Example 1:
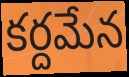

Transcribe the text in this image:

కర్దమేన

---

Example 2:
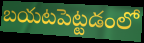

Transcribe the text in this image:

బయటపెట్టడంలో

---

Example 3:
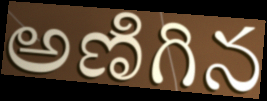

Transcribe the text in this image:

అణిగిన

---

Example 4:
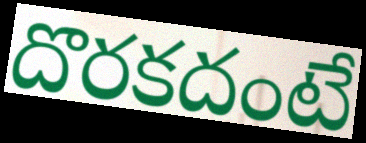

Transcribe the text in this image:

దొరకదంటే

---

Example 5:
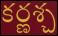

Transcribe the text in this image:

కర్ణశ్చ